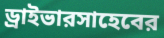
ড্রাইভারসাহেবের